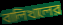
বালিখালের